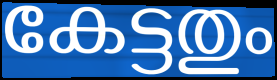
കേട്ടതും